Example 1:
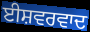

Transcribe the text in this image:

ਈਸ਼ਵਰਵਾਦ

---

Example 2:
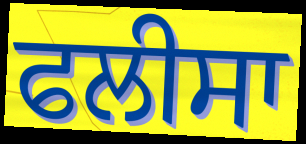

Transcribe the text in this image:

ਫਲੀਸਾ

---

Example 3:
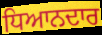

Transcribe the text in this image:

ਧਿਆਨਦਾਰ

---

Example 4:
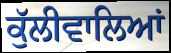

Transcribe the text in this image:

ਕੁੱਲੀਵਾਲਿਆਂ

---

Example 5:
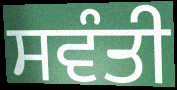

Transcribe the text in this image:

ਸਵੰਤੀ